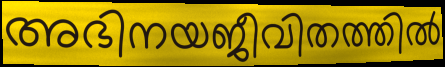
അഭിനയജീവിതത്തിൽ